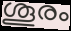
ശൂരം